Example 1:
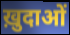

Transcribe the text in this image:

ख़ुदाओं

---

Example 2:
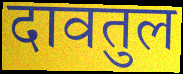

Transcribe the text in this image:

दावतुल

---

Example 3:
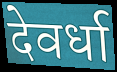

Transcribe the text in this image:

देवर्धा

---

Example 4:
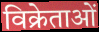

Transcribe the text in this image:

विक्रेताओं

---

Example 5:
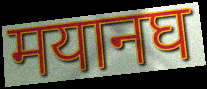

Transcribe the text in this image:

मयानघ